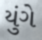
યુંગે